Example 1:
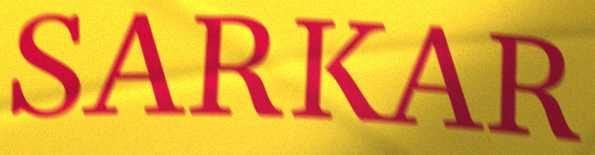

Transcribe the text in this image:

SARKAR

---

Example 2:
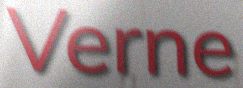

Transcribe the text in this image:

Verne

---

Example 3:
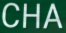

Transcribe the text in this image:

CHA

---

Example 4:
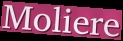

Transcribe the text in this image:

Moliere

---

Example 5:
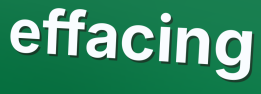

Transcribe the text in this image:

effacing